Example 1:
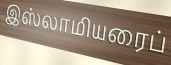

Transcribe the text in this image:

இஸ்லாமியரைப்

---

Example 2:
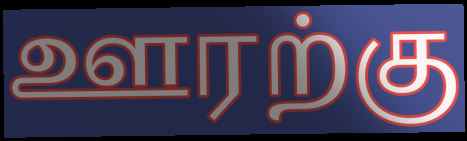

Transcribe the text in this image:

ஊரற்கு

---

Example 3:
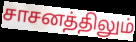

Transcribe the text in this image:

சாசனத்திலும்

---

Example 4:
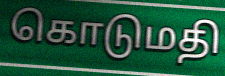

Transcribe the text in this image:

கொடுமதி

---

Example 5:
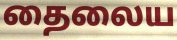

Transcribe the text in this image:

தைலைய